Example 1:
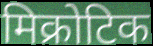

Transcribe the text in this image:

मिक्रोटिक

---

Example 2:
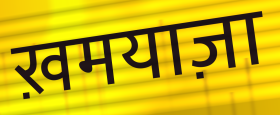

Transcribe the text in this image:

ख़मयाज़ा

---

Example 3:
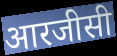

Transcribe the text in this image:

आरजीसी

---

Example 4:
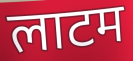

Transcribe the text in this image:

लाटम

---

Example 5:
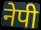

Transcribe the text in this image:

नेपी